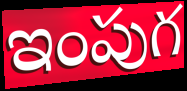
ఇంపుగ